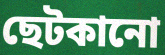
ছেটকানো